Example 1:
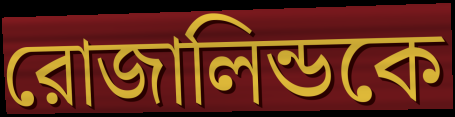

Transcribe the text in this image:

রোজালিন্ডকে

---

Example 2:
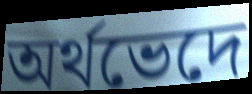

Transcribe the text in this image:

অর্থভেদে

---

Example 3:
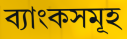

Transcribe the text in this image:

ব্যাংকসমূহ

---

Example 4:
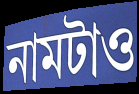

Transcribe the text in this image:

নামটাও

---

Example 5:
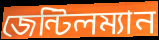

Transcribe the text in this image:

জেন্টিলম্যান